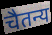
चैतन्य